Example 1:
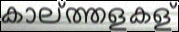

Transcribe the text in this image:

കാല്ത്തളകള്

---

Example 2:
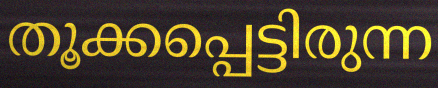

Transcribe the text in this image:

തൂക്കപ്പെട്ടിരുന്ന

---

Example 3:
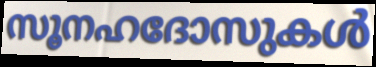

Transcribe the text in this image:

സൂനഹദോസുകൾ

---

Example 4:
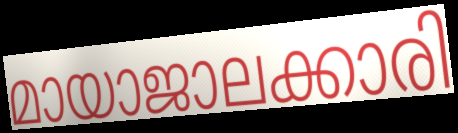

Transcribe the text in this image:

മായാജാലക്കാരി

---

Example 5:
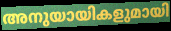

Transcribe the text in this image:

അനുയായികളുമായി